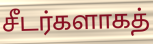
சீடர்களாகத்